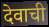
देवाची